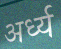
अर्ध्य